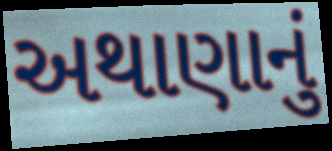
અથાણાનું